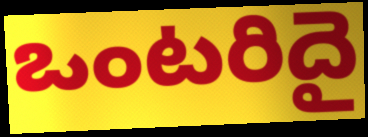
ఒంటరిదై